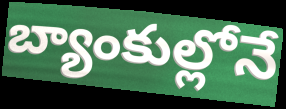
బ్యాంకుల్లోనే